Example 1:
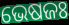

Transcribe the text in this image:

ଭେଷଜଃ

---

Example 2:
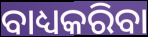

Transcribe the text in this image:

ବାଧ୍ୟକରିବା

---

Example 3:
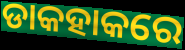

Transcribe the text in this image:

ଡାକହାକରେ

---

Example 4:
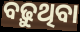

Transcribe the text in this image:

ବଢ଼ୁଥିବା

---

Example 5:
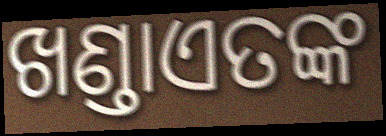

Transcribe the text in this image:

ଖଣ୍ଡାଏତଙ୍କ